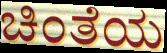
ಚಿಂತೆಯ